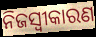
ନିଜସ୍ବୀକାରଣ